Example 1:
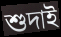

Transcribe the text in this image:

শুদাই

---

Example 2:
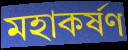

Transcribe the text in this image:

মহাকৰ্ষণ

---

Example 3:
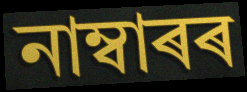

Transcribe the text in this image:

নাম্বাৰৰ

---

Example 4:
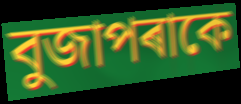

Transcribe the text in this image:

বুজাপৰাকে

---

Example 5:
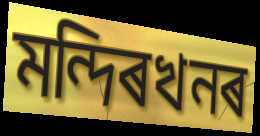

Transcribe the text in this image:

মন্দিৰখনৰ